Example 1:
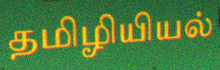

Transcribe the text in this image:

தமிழியியல்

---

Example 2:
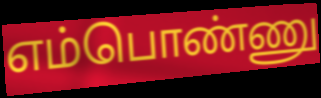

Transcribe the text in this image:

எம்பொண்ணு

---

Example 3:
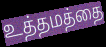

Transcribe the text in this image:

உத்தமத்தை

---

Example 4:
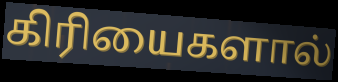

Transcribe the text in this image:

கிரியைகளால்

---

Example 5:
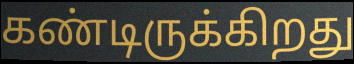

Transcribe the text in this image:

கண்டிருக்கிறது